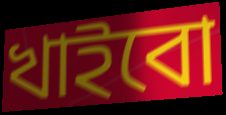
খাইবো